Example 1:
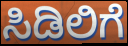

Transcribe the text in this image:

ಸಿಡಿಲಿಗೆ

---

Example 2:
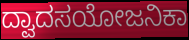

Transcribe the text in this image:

ದ್ವಾದಸಯೋಜನಿಕಾ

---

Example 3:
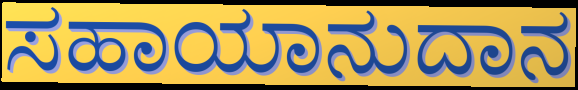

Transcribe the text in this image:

ಸಹಾಯಾನುದಾನ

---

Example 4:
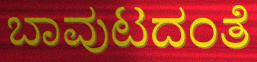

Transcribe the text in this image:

ಬಾವುಟದಂತೆ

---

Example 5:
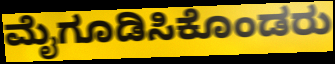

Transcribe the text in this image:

ಮೈಗೂಡಿಸಿಕೊಂಡರು